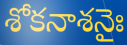
శోకనాశనైః